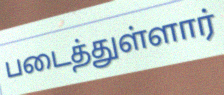
படைத்துள்ளார்